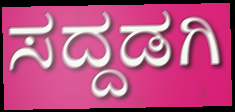
ಸದ್ದಡಗಿ